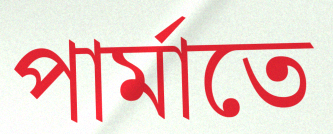
পার্মাতে